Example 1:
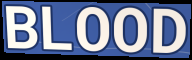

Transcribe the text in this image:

BLOOD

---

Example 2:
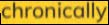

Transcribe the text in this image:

chronically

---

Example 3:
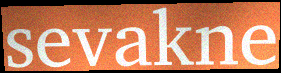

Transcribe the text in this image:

sevakne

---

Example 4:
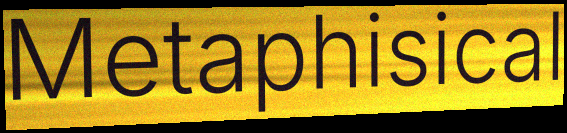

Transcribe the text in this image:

Metaphisical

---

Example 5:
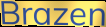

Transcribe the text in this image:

Brazen